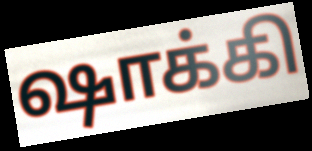
ஷாக்கி